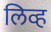
लिव्ह